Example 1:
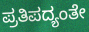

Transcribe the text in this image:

ಪ್ರತಿಪದ್ಯಂತೇ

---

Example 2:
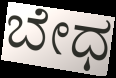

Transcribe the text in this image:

ಬೇಧ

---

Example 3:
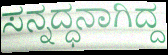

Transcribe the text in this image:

ಸನ್ನದ್ಧನಾಗಿದ್ದ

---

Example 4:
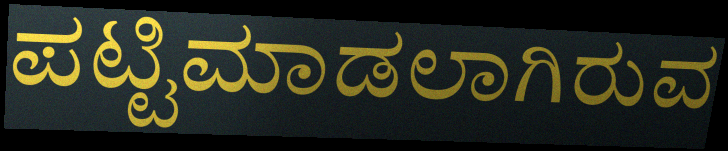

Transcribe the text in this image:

ಪಟ್ಟಿಮಾಡಲಾಗಿರುವ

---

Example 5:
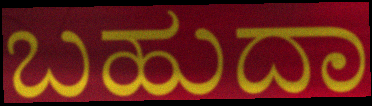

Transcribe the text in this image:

ಬಹುದಾ